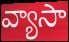
వ్యాసా